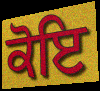
ਕੋਇ